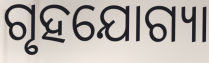
ଗୃହଯୋଗ୍ୟା